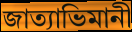
জাত্যাভিমানী